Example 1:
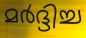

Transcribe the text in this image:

മർദ്ദിച്ച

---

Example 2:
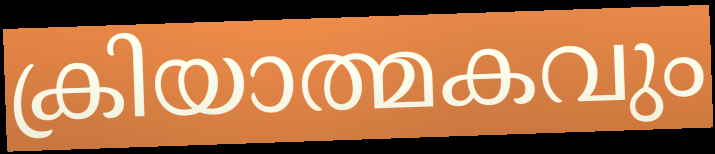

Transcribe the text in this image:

ക്രിയാത്മകവും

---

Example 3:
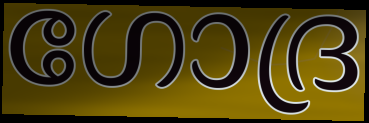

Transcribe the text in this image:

ഗോദ്ര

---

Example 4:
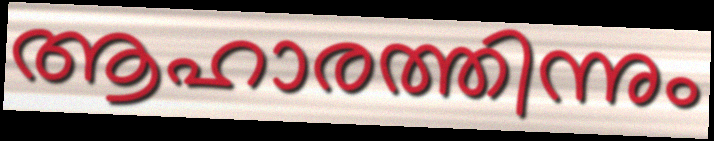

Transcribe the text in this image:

ആഹാരത്തിന്നും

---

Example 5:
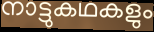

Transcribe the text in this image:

നാട്ടുകഥകളും